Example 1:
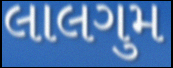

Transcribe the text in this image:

લાલગુમ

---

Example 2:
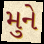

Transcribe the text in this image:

મુને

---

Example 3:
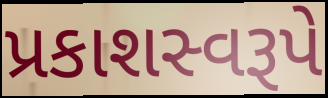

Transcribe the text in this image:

પ્રકાશસ્વરૂપે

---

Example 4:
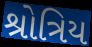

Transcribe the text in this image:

શ્રોત્રિય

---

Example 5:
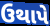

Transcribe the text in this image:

ઉથાપે